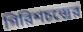
গিরিশচন্দ্রের